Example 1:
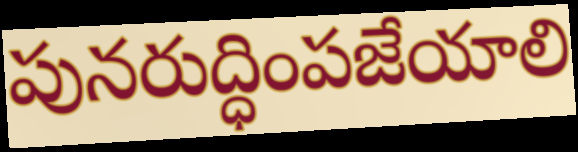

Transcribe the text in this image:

పునరుద్ధింపజేయాలి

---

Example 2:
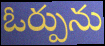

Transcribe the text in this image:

ఓర్పును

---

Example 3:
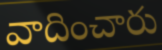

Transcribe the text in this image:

వాదించారు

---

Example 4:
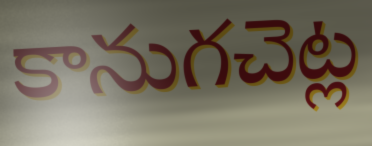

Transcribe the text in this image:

కానుగచెట్ల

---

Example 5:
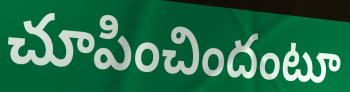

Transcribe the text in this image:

చూపించిందంటూ